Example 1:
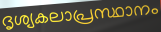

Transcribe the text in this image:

ദൃശ്യകലാപ്രസ്ഥാനം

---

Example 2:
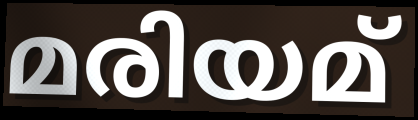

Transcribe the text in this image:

മരിയമ്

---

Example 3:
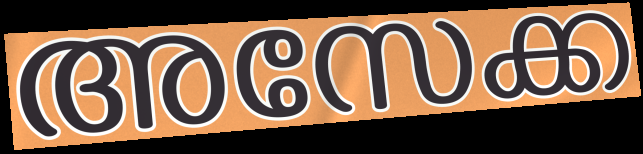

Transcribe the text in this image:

അസേക്ക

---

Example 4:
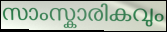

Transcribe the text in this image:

സാംസ്കാരികവും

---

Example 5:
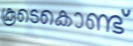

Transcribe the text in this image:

കൂടെകൊണ്ട്